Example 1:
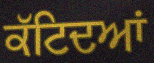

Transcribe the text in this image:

ਕੱਟਿਦਆਂ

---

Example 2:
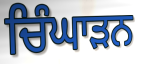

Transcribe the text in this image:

ਚਿੰਘਾੜਨ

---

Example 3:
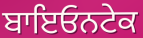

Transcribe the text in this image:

ਬਾਇਓਨਟੇਕ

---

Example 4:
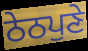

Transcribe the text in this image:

ਠੇਠਪੁਣੇ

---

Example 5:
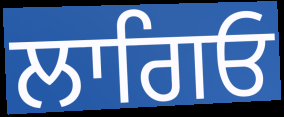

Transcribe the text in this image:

ਲਾਗਿਓ